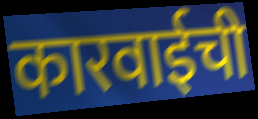
कारवाईची